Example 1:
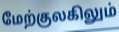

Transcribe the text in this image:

மேற்குலகிலும்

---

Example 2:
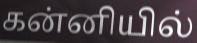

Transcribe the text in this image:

கன்னியில்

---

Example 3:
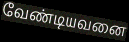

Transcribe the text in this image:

வேண்டியவனை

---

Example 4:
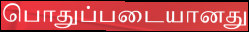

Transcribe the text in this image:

பொதுப்படையானது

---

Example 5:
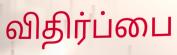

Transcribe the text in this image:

விதிர்ப்பை